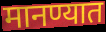
मानण्यात